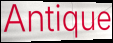
Antique